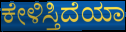
ಕೇಳಿಸ್ತಿದೆಯಾ